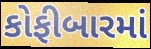
કોફીબારમાં